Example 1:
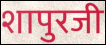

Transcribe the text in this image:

शापुरजी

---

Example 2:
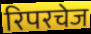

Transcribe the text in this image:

रिपरचेज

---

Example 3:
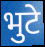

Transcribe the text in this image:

भुटे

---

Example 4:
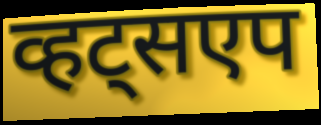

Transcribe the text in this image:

व्हट्सएप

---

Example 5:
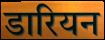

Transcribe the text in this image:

डारियन